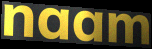
naam